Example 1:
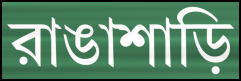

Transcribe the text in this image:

রাঙাশাড়ি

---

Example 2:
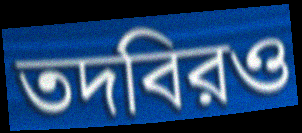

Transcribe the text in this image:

তদবিরও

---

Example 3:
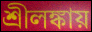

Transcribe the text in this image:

শ্রীলঙ্কায়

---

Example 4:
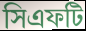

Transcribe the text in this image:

সিএফটি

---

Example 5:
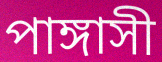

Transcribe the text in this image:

পাঙ্গাসী